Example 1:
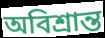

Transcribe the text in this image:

অবিশ্রান্ত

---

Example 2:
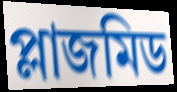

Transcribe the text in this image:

প্লাজমিড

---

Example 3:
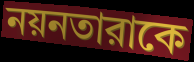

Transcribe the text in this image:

নয়নতারাকে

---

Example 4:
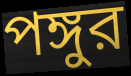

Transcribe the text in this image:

পঙ্গুর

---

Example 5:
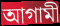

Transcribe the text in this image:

আগামী